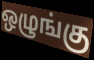
ஒழுங்கு